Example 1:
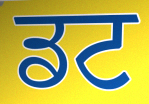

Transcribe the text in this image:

ਡਟ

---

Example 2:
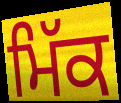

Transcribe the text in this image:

ਮਿੱਕ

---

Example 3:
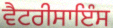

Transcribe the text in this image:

ਵੈਟਰੀਸਾਇੰਸ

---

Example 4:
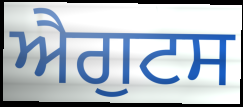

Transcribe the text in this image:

ਐਗੁਟਸ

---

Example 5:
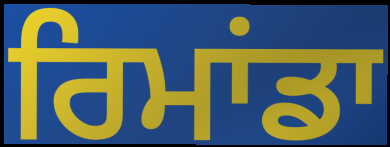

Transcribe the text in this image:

ਰਿਮਾਂਡਾ